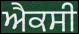
ਐਕਸੀ